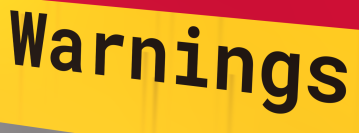
Warnings